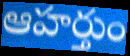
ఆహర్తుం